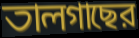
তালগাছের